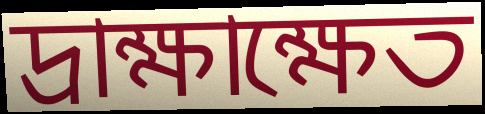
দ্রাক্ষাক্ষেত